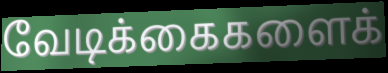
வேடிக்கைகளைக்